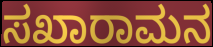
ಸಖಾರಾಮನ